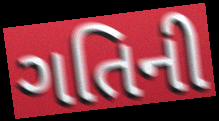
ગતિની